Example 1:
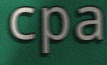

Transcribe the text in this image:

cpa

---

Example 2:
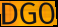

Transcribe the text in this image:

DGO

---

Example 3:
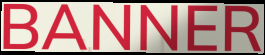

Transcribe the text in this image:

BANNER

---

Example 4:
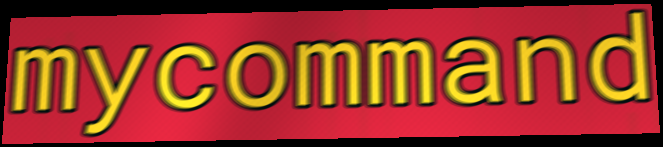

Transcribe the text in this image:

mycommand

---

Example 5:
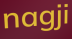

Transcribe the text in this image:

nagji